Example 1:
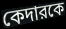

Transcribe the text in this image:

কেদারকে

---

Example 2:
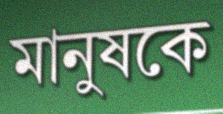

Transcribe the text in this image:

মানুষকে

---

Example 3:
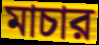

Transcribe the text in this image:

মাচার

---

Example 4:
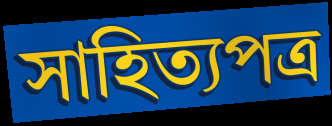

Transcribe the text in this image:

সাহিত্যপত্র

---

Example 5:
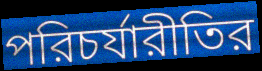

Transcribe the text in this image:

পরিচর্যারীতির